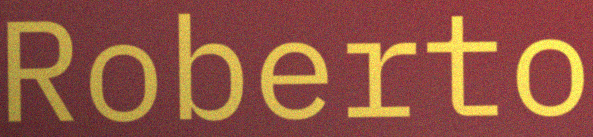
Roberto